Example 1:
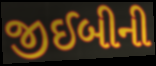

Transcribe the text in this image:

જીઈબીની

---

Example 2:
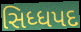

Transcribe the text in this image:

સિધ્ધપદ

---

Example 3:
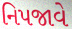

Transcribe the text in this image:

નિપજાવે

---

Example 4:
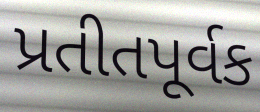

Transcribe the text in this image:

પ્રતીતપૂર્વક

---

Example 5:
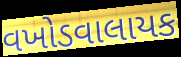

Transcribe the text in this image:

વખોડવાલાયક